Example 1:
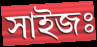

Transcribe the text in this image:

সাইজঃ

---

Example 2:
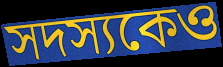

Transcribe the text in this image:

সদস্যকেও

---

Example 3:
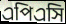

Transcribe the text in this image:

এপিএসি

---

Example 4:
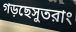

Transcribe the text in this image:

গড়ছেসুতরাং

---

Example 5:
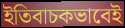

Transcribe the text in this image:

ইতিবাচকভাবেই